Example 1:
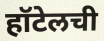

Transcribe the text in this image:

हॉटेलची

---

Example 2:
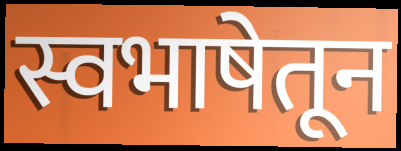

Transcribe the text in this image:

स्वभाषेतून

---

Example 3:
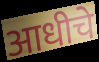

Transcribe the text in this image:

आधीचे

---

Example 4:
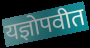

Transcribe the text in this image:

यज्ञोपवीत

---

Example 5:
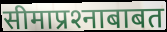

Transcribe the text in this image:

सीमाप्रश्नाबाबत